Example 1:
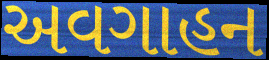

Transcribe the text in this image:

અવગાહન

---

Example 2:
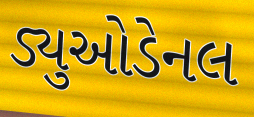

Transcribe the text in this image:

ડ્યુઓડેનલ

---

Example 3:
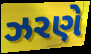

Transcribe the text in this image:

ઝરણે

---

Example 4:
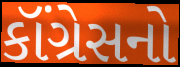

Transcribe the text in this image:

કૉંગ્રેસનો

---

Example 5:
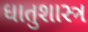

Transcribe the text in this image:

ધાતુશાસ્ત્ર